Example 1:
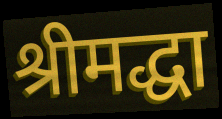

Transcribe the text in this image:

श्रीमद्धा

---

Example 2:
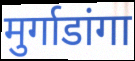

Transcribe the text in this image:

मुर्गाडांगा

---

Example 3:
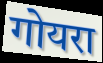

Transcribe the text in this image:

गोयरा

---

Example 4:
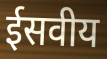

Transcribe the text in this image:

ईसवीय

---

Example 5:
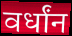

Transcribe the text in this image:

वर्धांन